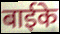
बाईके